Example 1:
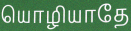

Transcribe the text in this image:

யொழியாதே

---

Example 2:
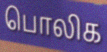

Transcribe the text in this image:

பொலிக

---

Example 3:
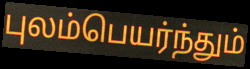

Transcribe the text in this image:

புலம்பெயர்ந்தும்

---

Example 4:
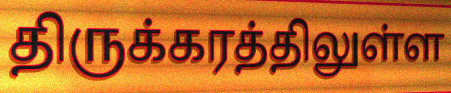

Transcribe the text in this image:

திருக்கரத்திலுள்ள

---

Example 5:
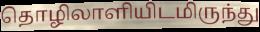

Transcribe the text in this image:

தொழிலாளியிடமிருந்து